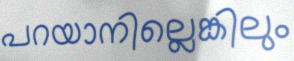
പറയാനില്ലെങ്കിലും